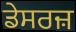
ਡੇਸਰਜ਼